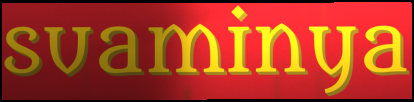
suaminya